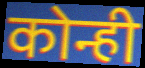
कोन्ही